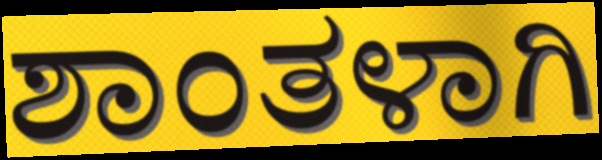
ಶಾಂತಳಾಗಿ